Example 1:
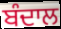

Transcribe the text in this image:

ਬੰਦਾਲ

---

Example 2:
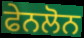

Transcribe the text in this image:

ਫੇਨਲੋਨ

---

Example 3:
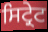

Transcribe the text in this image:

ਸਿਟ੍ਰੇਟ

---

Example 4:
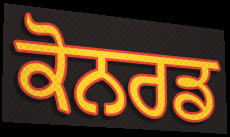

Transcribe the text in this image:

ਕੋਨਰਡ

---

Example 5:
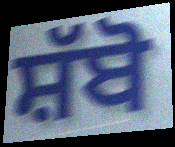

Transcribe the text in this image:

ਸ਼ੱਬੋ